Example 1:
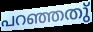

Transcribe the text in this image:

പറഞ്ഞതു്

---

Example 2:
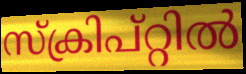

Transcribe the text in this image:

സ്ക്രിപ്റ്റിൽ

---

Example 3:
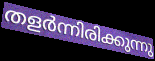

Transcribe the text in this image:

തളർന്നിരിക്കുന്നു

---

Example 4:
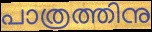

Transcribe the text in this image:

പാത്രത്തിനു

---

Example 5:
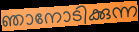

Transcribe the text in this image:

ഞാനോടിക്കുന്ന